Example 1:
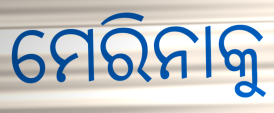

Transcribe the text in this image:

ମେରିନାକୁ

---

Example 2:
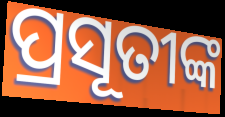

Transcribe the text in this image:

ପ୍ରସୂତୀଙ୍କ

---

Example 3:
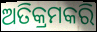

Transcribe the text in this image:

ଅତିକ୍ରମକରି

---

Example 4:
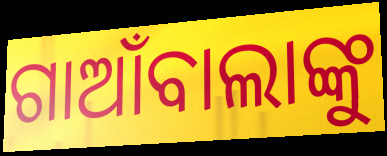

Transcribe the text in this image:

ଗାଆଁବାଲାଙ୍କୁ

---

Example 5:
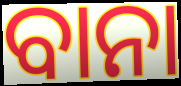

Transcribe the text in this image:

ବାନା